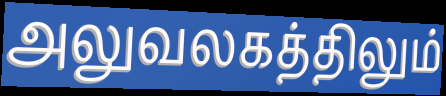
அலுவலகத்திலும்